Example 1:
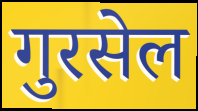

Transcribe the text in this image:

गुरसेल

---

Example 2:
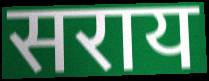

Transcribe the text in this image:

सराय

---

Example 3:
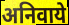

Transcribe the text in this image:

अनिवाये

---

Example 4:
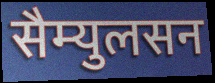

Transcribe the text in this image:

सैम्युलसन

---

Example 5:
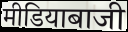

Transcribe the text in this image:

मीडियाबाजी